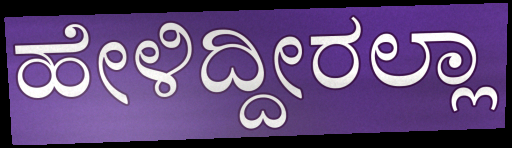
ಹೇಳಿದ್ದೀರಲ್ಲಾ